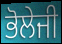
ਭੋਲੇਜੀ